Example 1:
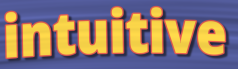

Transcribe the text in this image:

intuitive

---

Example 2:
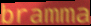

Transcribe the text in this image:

bramma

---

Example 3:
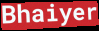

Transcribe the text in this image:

Bhaiyer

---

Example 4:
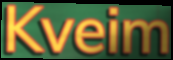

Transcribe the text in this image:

Kveim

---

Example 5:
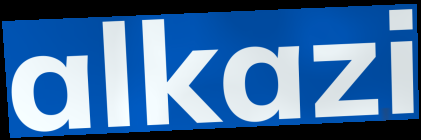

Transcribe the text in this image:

alkazi